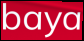
baya